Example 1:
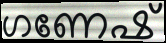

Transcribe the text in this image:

ഗണേഷ്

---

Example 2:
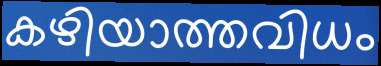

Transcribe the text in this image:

കഴിയാത്തവിധം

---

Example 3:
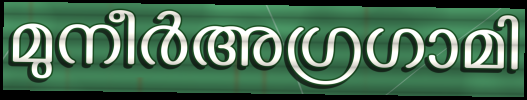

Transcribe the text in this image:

മുനീർഅഗ്രഗാമി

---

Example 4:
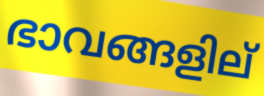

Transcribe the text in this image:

ഭാവങ്ങളില്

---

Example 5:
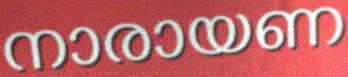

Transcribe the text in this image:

നാരായണ